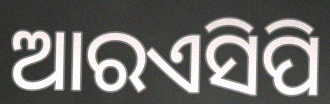
ଆରଏସିପି